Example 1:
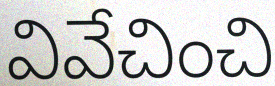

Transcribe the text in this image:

వివేచించి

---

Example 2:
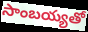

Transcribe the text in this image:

సాంబయ్యతో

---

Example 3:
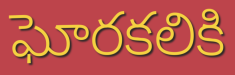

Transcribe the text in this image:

ఘోరకలికి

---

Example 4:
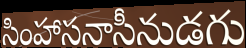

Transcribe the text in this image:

సింహాసనాసీనుడగు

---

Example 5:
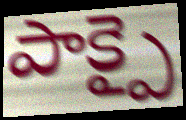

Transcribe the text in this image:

పాక్పై